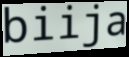
biija